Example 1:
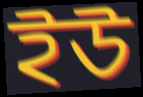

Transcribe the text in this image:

ইউ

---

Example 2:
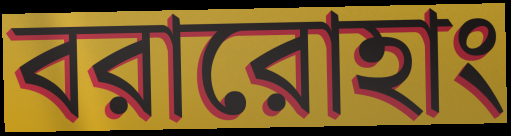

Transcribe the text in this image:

বরারোহাং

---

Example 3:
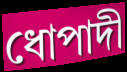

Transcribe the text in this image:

ধোপাদী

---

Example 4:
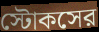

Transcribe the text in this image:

স্টোকসের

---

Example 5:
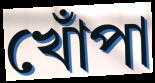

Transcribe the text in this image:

খোঁপা